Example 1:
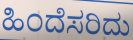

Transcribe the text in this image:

ಹಿಂದೆಸರಿದು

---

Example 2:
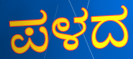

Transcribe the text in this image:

ಪಳದ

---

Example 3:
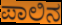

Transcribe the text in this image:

ಪಾಲಿನ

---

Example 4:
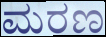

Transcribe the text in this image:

ಮರಣ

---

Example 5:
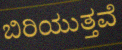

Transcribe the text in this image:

ಬಿರಿಯುತ್ತವೆ